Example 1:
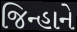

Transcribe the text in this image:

જિન્હાને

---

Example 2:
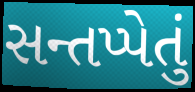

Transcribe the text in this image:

સન્તપ્પેતું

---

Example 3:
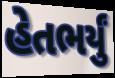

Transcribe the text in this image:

હેતભર્યું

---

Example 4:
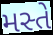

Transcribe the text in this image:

મસ્તે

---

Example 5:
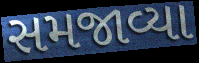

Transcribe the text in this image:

સમજાવ્યા